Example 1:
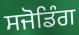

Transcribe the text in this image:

ਸਜੋਡਿੰਗ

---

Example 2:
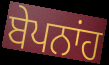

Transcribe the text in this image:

ਬੇਪਨਾਂਹ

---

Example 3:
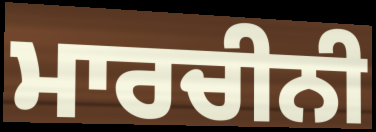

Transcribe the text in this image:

ਮਾਰਚੀਨੀ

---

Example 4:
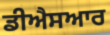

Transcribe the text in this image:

ਡੀਐਸਆਰ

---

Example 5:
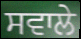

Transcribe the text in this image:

ਸਵਾਲੇ